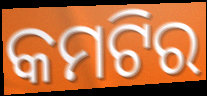
କମଟିର